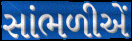
સાંભળીએં